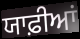
ਯਾਫ਼ੀਆਂ